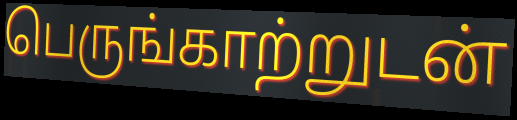
பெருங்காற்றுடன்